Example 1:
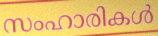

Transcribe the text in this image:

സംഹാരികൾ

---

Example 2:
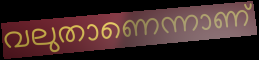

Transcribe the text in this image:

വലുതാണെന്നാണ്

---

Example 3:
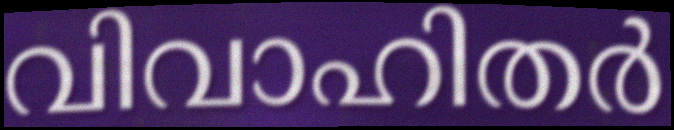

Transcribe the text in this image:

വിവാഹിതർ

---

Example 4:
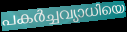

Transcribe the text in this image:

പകർച്ചവ്യാധിയെ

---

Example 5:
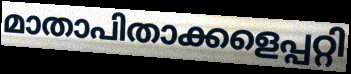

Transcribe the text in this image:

മാതാപിതാക്കളെപ്പറ്റി